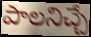
పాలనిచ్చే